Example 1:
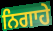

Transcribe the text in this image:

ਨਿਗਾਹੇ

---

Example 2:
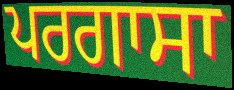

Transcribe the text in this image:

ਪਰਗਾਸਾ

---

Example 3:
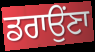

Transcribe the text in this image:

ਡਰਾਉਂਣਾ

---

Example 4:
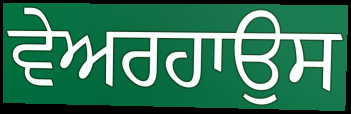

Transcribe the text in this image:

ਵੇਅਰਹਾਉਸ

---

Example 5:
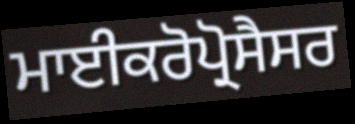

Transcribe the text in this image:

ਮਾਈਕਰੋਪ੍ਰੋਸੈਸਰ